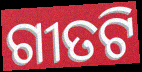
ଗୀତଟି